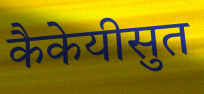
कैकेयीसुत